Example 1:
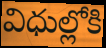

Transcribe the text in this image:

విధుల్లోకి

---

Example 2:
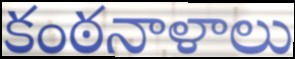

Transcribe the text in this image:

కంఠనాళాలు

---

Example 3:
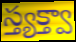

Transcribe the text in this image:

స్త్యక్త్వా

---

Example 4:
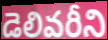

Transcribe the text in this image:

డెలివరీని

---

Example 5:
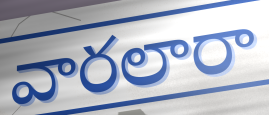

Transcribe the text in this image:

వారలారా